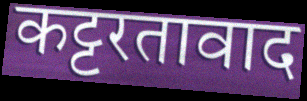
कट्टरतावाद